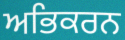
ਅਭਿਕਰਨ